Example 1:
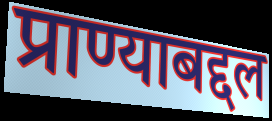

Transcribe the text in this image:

प्राण्याबद्दल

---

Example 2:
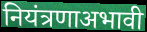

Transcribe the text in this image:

नियंत्रणाअभावी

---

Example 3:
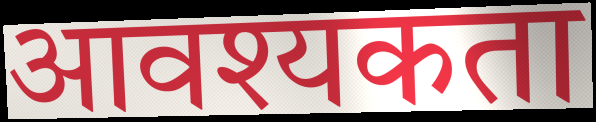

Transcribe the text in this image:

आवश्‍यकता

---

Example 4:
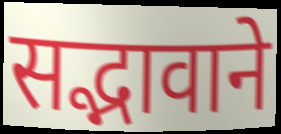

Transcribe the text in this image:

सद्भावाने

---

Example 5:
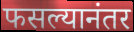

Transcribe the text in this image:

फसल्यानंतर